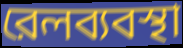
রেলব্যবস্থা